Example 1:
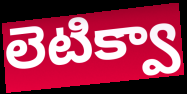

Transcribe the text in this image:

లెటిక్వా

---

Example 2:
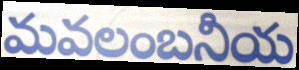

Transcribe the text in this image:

మవలంబనీయ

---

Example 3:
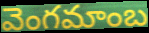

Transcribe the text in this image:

వెంగమాంబ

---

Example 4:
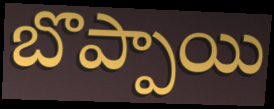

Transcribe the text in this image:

బొప్పాయి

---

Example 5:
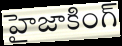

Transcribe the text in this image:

హైజాకింగ్